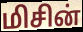
மிசின்